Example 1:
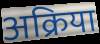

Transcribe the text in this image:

अक्रिया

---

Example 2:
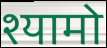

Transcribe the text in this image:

श्यामो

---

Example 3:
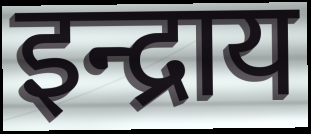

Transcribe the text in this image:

इन्द्राय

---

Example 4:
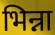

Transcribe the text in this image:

भिन्ना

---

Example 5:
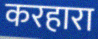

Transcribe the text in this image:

करहारा